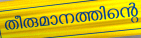
തീരുമാനത്തിന്റെ